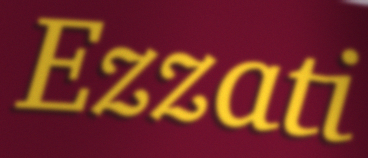
Ezzati